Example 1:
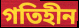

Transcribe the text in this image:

গতিহীন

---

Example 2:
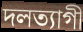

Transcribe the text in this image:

দলত্যাগী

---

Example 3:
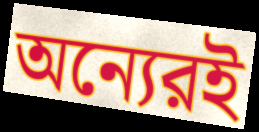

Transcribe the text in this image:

অন্যেরই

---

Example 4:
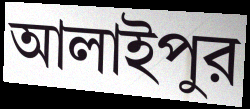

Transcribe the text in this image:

আলাইপুর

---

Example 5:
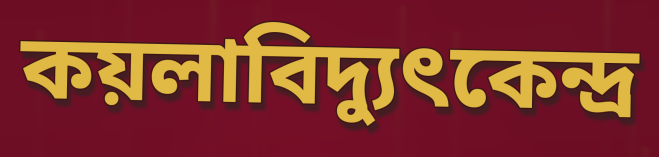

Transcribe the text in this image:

কয়লাবিদ্যুৎকেন্দ্র